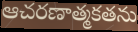
ఆచరణాత్మకతను